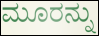
ಮೂರನ್ನು